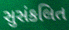
સુસંકલિત